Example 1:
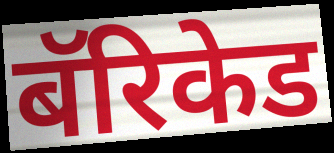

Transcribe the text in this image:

बॅरिकेड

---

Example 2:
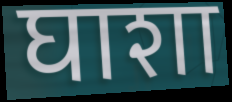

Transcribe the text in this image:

घाशा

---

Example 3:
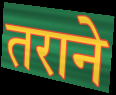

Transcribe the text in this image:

तराने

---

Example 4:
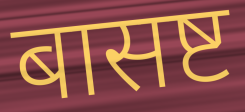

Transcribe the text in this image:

बासष्ट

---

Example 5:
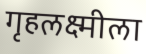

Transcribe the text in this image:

गृहलक्ष्मीला